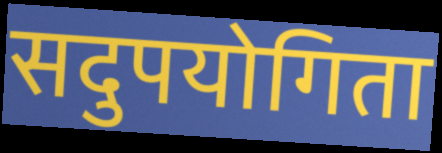
सदुपयोगिता